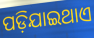
ପଡ଼ିଯାଇଥାଏ